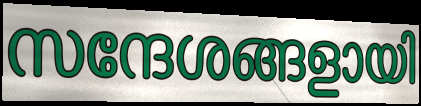
സന്ദേശങ്ങളായി